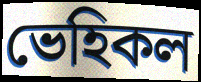
ভেহিকল